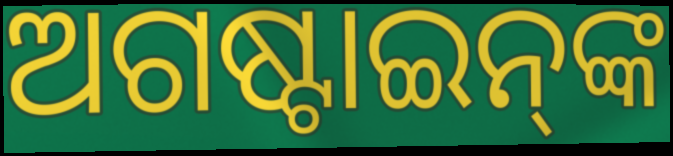
ଅଗଷ୍ଟାଇନ୍‌ଙ୍କ